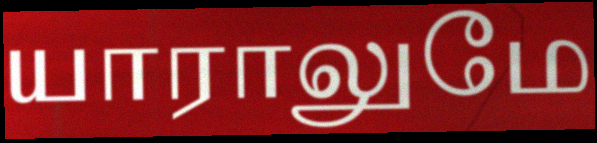
யாராலுமே